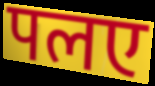
पलए